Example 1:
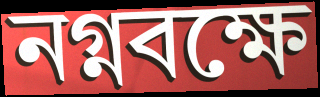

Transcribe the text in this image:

নগ্নবক্ষে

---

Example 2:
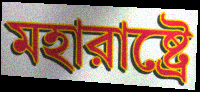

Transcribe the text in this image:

মহারাষ্ট্রে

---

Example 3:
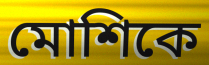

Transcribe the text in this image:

মোশিকে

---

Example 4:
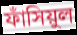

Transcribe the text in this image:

ফাঁসিয়ুল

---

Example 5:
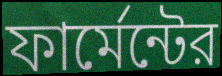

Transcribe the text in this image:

ফার্মেন্টের